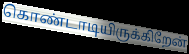
கொண்டாடியிருக்கிறேன்